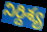
నిర్దిశ్య